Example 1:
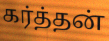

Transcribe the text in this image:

கர்த்தன்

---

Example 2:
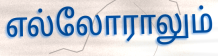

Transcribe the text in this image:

எல்லோராலும்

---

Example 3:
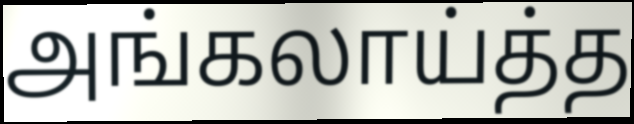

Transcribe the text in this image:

அங்கலாய்த்த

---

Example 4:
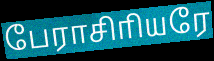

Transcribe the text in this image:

பேராசிரியரே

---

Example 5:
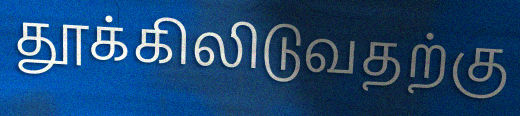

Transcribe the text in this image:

தூக்கிலிடுவதற்கு